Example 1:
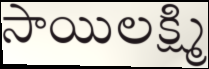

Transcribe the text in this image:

సాయిలక్ష్మి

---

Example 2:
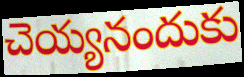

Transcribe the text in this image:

చెయ్యనందుకు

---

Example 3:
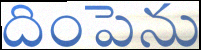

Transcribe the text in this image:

దింపెను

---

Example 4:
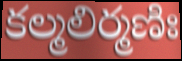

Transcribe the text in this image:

కల్మలిర్మణిః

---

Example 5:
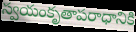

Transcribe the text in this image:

స్వయంకృతాపరాధానికి